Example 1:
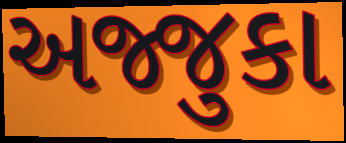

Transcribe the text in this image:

અજ્જુકા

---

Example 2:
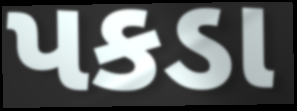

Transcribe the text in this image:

પકડા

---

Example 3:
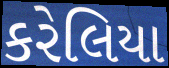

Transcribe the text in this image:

કરેલિયા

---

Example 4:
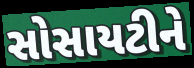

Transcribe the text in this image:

સોસાયટીને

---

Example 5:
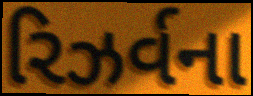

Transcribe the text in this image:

રિઝર્વના